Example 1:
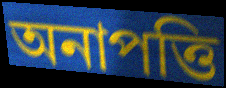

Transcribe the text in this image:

অনাপত্তি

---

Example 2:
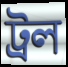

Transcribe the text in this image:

ট্রল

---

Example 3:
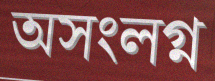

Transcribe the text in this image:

অসংলগ্ন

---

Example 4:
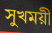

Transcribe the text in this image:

সুখময়ী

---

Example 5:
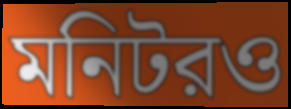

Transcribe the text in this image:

মনিটরও